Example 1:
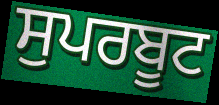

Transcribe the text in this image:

ਸੁਪਰਬੂਟ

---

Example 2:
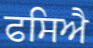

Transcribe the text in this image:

ਫਸਿਐ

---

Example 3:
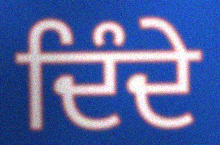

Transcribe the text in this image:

ਦਿੰਦੇ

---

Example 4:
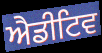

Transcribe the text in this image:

ਐਡੀਟਿਵ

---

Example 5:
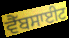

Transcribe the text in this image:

ਵੈੱਬਸਾਈਟ